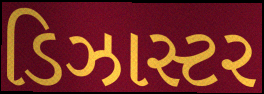
ડિઝાસ્ટર